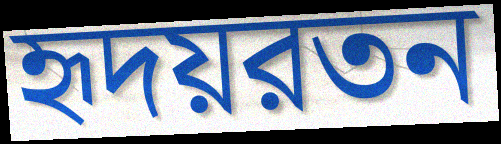
হৃদয়রতন